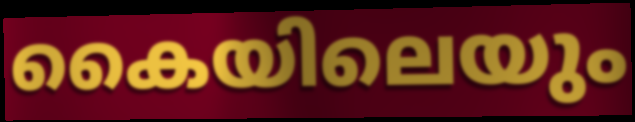
കൈയിലെയും